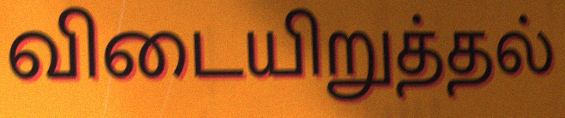
விடையிறுத்தல்